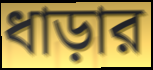
ধাড়ার